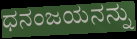
ಧನಂಜಯನನ್ನು